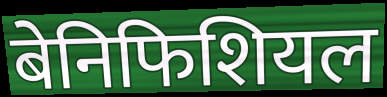
बेनिफिशियल